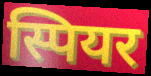
स्पियर